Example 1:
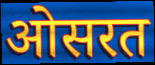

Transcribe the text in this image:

ओसरत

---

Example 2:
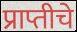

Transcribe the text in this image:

प्राप्तीचे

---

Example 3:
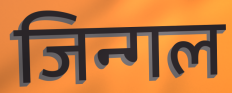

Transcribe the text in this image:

जिन्गल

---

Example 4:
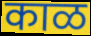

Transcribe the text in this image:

काळ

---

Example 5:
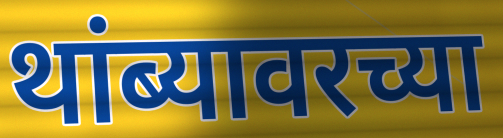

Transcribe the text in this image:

थांब्यावरच्या